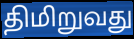
திமிறுவது